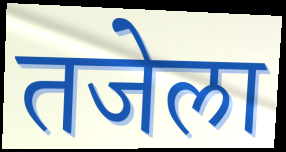
तजेला